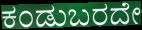
ಕಂಡುಬರದೇ